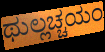
ಥುಲ್ಲಚ್ಚಯಂ